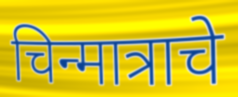
चिन्मात्राचे